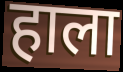
हाला